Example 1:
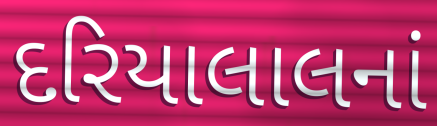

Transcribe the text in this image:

દરિયાલાલનાં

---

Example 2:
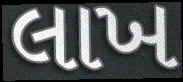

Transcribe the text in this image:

લાખ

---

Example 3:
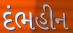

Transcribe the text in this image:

દંભહીન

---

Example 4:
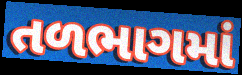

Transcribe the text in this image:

તળભાગમાં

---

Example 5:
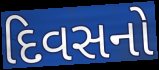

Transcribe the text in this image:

દિવસનો